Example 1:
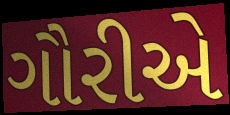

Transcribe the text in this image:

ગૌરીએ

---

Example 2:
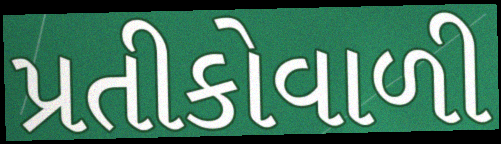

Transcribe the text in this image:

પ્રતીકોવાળી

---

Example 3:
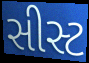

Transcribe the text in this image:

સીસ્ટ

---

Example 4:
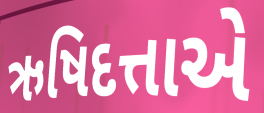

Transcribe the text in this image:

ઋષિદત્તાએ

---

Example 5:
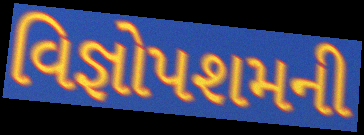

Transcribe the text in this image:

વિજ્ઞોપશમની